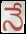
నే